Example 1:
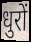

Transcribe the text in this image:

धुरों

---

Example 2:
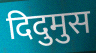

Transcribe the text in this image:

दिदुमुस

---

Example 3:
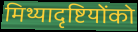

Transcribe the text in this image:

मिथ्यादृष्टियोंको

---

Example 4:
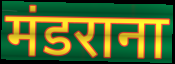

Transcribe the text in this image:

मंडराना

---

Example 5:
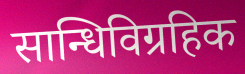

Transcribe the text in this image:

सान्धिविग्रहिक